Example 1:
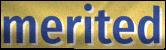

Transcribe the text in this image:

merited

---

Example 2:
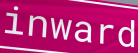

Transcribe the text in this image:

inward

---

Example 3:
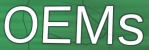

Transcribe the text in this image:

OEMs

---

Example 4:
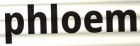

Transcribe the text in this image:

phloem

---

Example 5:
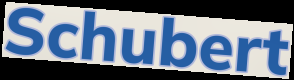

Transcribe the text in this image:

Schubert